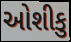
ઓશીકુ